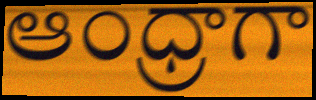
ఆంధ్రాగా